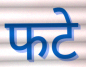
फटे